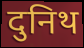
दुनिथ